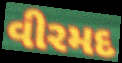
વીરમદ